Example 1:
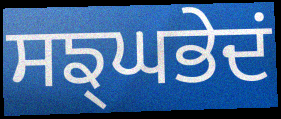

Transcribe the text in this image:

ਸਙ੍ਘਭੇਦਂ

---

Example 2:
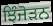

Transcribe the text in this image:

ਝਿੰਜੋੜਨ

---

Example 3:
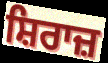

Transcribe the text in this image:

ਸ਼ਿਰਾਜ਼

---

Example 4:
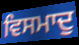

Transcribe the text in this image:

ਵਿਸਮਾਦੁ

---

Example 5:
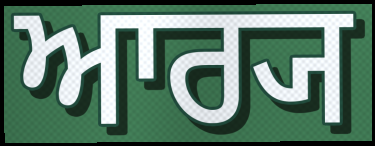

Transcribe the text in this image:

ਆਰ੍ਯ